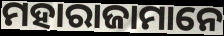
ମହାରାଜାମାନେ